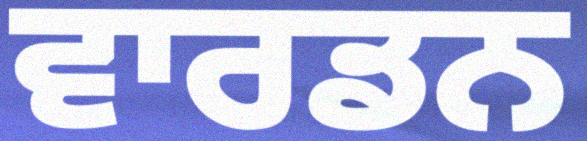
ਵਾਰਡਨ